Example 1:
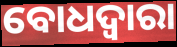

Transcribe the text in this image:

ବୋଧଦ୍ଵାରା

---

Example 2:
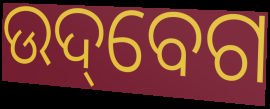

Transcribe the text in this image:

ଉଦ୍‌ବେଗ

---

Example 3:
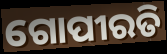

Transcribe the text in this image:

ଗୋପୀରତି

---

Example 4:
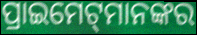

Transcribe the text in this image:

ପ୍ରାଇମେଟ୍‌ମାନଙ୍କର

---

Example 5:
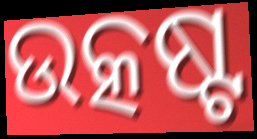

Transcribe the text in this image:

ଉତ୍କଷ୍ଟ